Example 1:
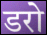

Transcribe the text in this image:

डरो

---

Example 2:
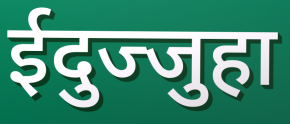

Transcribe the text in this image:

ईदुज्जुहा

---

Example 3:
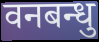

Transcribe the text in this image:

वनबन्धु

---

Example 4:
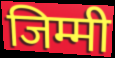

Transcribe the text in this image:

जिम्मी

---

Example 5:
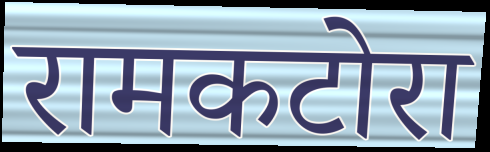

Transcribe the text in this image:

रामकटोरा